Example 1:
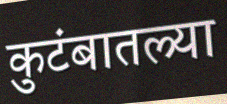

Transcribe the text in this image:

कुटंबातल्या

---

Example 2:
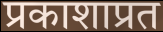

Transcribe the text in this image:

प्रकाशाप्रत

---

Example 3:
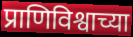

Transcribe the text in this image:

प्राणिविश्वाच्या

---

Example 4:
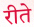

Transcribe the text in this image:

रीते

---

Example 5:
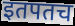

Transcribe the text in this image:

इतपतच